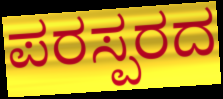
ಪರಸ್ಪರದ